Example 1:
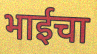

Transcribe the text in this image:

भाईचा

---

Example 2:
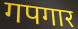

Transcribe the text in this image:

गपगार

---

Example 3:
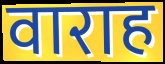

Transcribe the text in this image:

वाराह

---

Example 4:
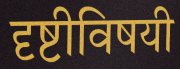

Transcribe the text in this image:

दृष्टीविषयी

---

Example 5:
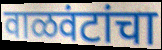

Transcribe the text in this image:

वाळवंटांचा